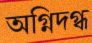
অগ্নিদগ্ধ